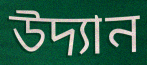
উদ্যান